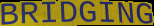
BRIDGING